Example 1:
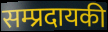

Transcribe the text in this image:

सम्प्रदायकी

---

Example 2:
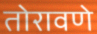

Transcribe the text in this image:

तोरावणे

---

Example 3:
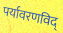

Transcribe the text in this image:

पर्यावरणविद्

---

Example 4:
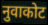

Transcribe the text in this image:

नुवाकोट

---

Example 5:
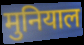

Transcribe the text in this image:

मुनियाल